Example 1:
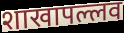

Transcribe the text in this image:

शाखापल्लव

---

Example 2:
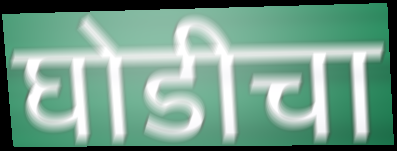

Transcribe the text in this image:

घोडीचा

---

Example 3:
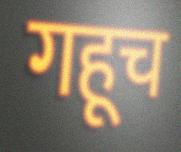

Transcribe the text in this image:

गहूच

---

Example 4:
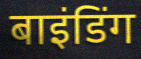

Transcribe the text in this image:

बाइंडिंग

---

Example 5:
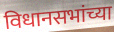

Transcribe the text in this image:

विधानसभांच्या